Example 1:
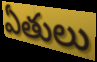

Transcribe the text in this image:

ఏతులు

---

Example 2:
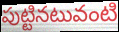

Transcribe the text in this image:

పుట్టినటువంటి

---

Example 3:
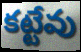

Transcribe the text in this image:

కట్టేవు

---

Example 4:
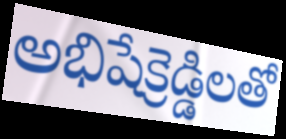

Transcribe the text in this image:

అభిషేక్రెడ్డిలతో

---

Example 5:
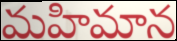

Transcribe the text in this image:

మహిమాన